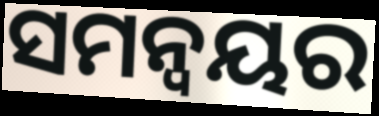
ସମନ୍ଵୟର